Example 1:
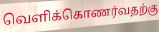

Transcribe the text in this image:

வெளிக்கொணர்வதற்கு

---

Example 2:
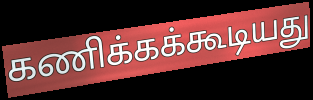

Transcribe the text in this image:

கணிக்கக்கூடியது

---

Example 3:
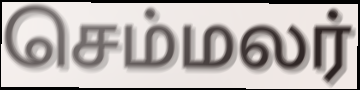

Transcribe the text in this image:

செம்மலர்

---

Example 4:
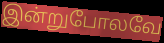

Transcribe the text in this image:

இன்றுபோலவே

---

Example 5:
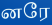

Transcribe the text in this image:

னரே